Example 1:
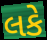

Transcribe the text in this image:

લકે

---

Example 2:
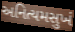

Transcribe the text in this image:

અનિત્યમસુખં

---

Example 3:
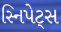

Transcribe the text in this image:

સ્નિપેટ્સ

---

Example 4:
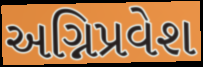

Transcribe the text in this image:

અગ્નિપ્રવેશ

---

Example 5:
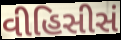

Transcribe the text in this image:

વીહિસીસં